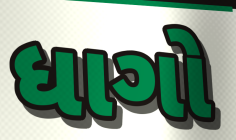
ધાગો